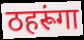
ठहरूंगा